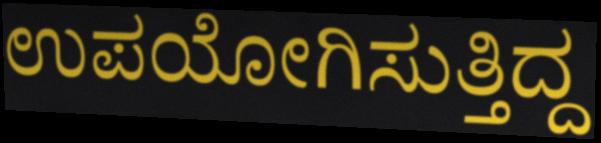
ಉಪಯೋಗಿಸುತ್ತಿದ್ದ